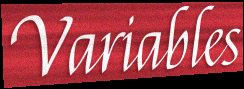
Variables